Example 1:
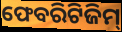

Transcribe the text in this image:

ଫେବରିଟିଜିମ୍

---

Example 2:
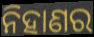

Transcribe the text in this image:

ନିହାଣର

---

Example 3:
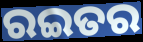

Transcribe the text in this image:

ରଇତର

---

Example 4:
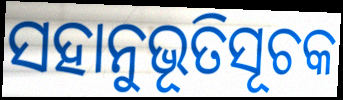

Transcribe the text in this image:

ସହାନୁଭୂତିସୂଚକ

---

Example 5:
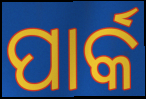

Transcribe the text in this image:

ପାର୍କ